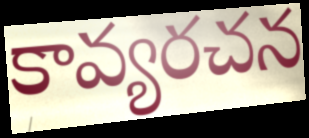
కావ్యరచన